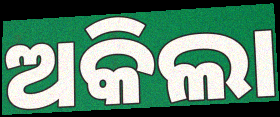
ଅକିଲା